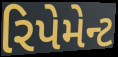
રિપેમેન્ટ